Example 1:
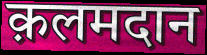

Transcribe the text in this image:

क़लमदान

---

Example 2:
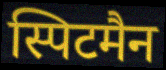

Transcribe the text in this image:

स्पिटमैन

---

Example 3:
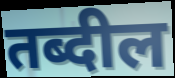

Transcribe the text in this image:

तब्दील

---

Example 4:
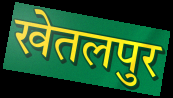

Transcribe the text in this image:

खेतलपुर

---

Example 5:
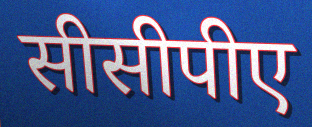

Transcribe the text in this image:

सीसीपीए